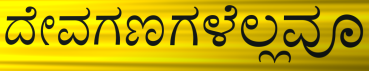
ದೇವಗಣಗಳೆಲ್ಲವೂ